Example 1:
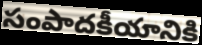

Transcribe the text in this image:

సంపాదకీయానికి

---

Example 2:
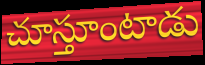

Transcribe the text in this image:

చూస్తూంటాడు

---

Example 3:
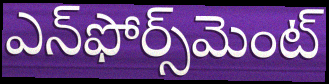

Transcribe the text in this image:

ఎన్‌ఫోర్స్‌మెంట్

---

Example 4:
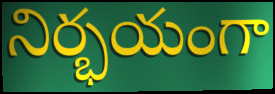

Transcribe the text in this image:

నిర్భయంగా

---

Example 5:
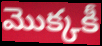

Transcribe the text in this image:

మొక్కకీ